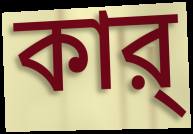
কার্